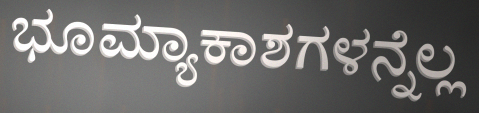
ಭೂಮ್ಯಾಕಾಶಗಳನ್ನೆಲ್ಲ